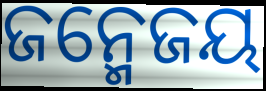
ଜନ୍ମେଜୟ